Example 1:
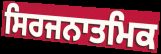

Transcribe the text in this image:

ਸਿਰਜਨਾਤਮਿਕ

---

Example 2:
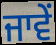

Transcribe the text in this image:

ਜਾਵੇਂ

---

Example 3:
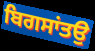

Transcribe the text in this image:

ਬਿਗਸਾਂਤਉ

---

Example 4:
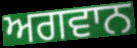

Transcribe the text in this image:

ਅਗਵਾਨ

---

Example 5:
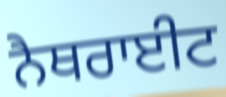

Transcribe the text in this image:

ਨੈਥਰਾਈਟ